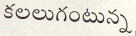
కలలుగంటున్న